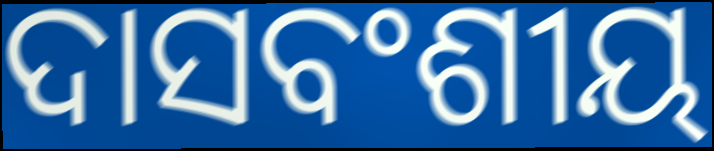
ଦାସବଂଶୀୟ